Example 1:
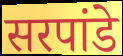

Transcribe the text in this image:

सरपांडे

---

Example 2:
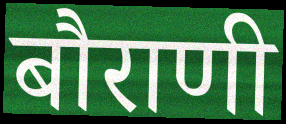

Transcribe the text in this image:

बौराणी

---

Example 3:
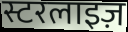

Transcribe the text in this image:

स्टरलाइज़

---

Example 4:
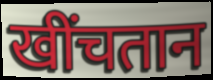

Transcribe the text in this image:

खींचतान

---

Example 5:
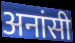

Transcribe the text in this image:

अनांसी